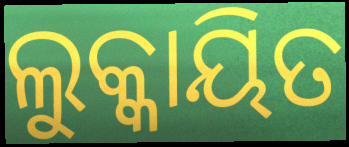
ଲୁକ୍କାୟିତ